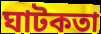
ঘাটকতা